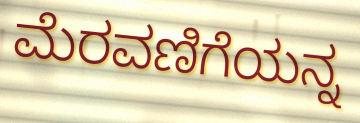
ಮೆರವಣಿಗೆಯನ್ನ